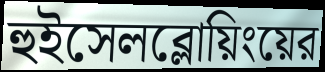
হুইসেলব্লোয়িংয়ের